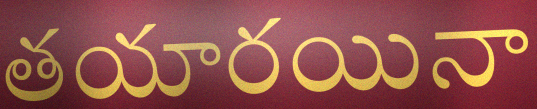
తయారయినా